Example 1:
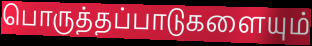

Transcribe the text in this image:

பொருத்தப்பாடுகளையும்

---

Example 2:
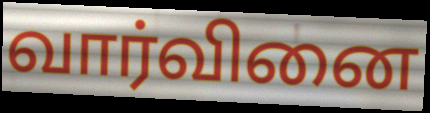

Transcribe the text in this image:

வார்வினை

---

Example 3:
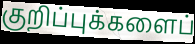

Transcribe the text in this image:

குறிப்புக்களைப்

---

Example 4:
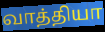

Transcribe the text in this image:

வாத்தியா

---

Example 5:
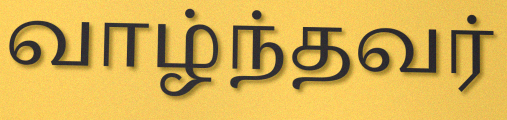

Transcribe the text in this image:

வாழ்ந்தவர்